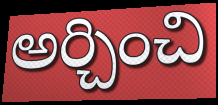
అర్చించి